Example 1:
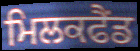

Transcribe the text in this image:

ਮਿਲਕਫੈਂਡ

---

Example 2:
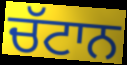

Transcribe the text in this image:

ਚੱਟਾਨ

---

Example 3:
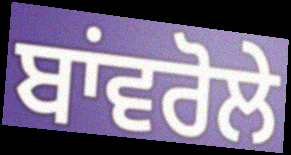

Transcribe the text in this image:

ਬਾਂਵਰੋਲੇ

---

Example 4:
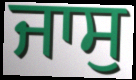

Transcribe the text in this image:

ਜਾਸੁ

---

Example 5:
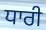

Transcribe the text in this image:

ਧਾਰੀ